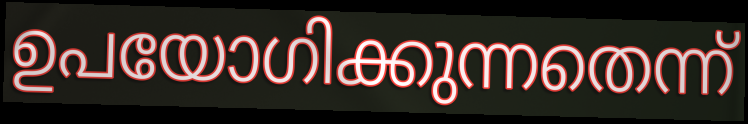
ഉപയോഗിക്കുന്നതെന്ന്